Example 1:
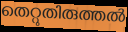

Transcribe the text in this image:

തെറ്റുതിരുത്തൽ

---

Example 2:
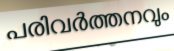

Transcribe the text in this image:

പരിവർത്തനവും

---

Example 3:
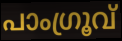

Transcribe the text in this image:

പാംഗ്രൂവ്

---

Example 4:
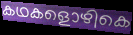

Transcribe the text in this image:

കഥകളൊഴികെ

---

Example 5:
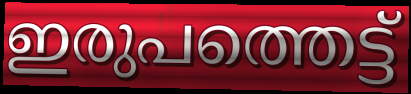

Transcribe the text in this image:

ഇരുപത്തെട്ട്